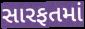
સારફતમાં